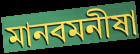
মানবমনীষা